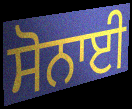
ਸੋਨਾਈ